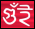
গুঁই